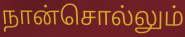
நான்சொல்லும்